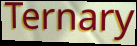
Ternary